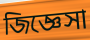
জিজ্ঞেসা